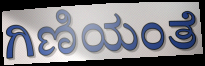
ಗಿಣಿಯಂತೆ